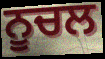
ਨੂਚਲ